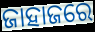
ଜାହାଜରେ